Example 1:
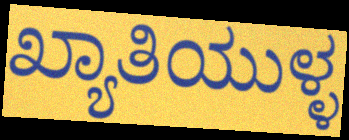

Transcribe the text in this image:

ಖ್ಯಾತಿಯುಳ್ಳ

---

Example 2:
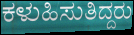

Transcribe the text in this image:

ಕಳುಹಿಸುತಿದ್ದರು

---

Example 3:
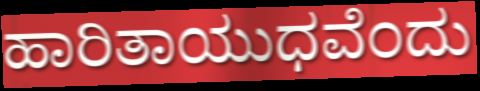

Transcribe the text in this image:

ಹಾರಿತಾಯುಧವೆಂದು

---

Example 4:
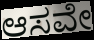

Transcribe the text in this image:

ಆಸವೇ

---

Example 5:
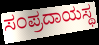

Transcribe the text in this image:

ಸಂಪ್ರದಾಯಸ್ಥ